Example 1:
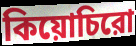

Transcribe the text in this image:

কিয়োচিরো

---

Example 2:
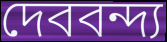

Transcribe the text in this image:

দেববন্দ্য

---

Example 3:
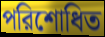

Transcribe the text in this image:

পরিশোধিত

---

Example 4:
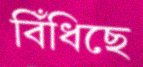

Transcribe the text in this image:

বিঁধিছে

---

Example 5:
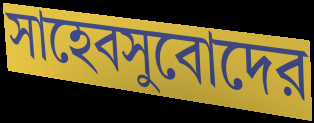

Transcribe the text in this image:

সাহেবসুবোদের